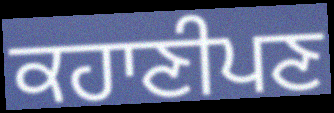
ਕਹਾਣੀਪਣ